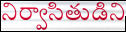
నిర్వాసితుడిని